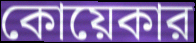
কোয়েকার